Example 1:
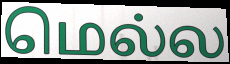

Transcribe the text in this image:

மெல்ல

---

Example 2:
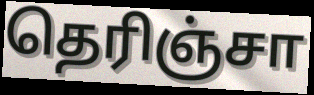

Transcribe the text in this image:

தெரிஞ்சா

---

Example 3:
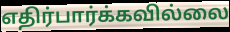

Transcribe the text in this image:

எதிர்பார்க்கவில்லை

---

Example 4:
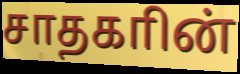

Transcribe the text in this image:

சாதகரின்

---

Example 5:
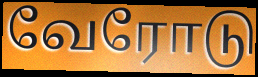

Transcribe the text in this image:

வேரோடு